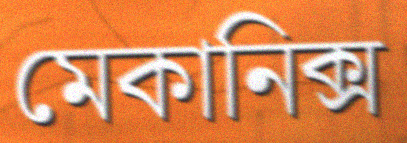
মেকানিক্স